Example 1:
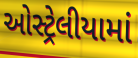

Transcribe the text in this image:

ઓસ્ટ્રેલીયામાં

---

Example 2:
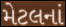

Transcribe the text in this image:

મેટલનાં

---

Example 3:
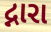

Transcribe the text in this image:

દ્નારા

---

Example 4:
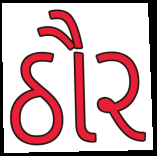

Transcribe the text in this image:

ઠૌર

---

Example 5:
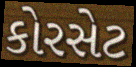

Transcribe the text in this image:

કોરસેટ